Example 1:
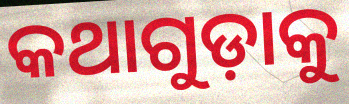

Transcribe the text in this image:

କଥାଗୁଡ଼ାକୁ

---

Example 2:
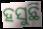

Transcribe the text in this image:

ହସୁଛି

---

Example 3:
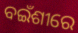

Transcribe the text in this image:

ବଇଁଶୀରେ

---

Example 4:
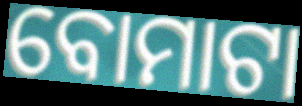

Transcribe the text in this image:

ବୋମାଟା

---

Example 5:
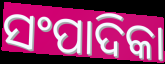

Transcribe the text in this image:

ସଂପାଦିକା